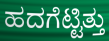
ಹದಗೆಟ್ಟಿತ್ತು